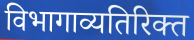
विभागाव्यतिरिक्त